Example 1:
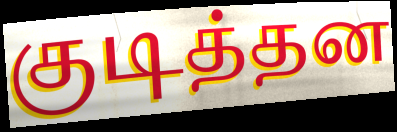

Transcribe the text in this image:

குடித்தன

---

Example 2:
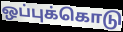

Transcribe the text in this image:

ஒப்புக்கொடு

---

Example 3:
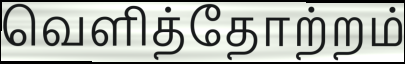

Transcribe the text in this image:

வெளித்தோற்றம்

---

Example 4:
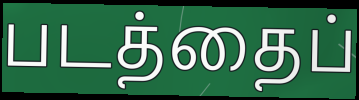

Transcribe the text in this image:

படத்தைப்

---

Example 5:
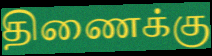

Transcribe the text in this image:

திணைக்கு